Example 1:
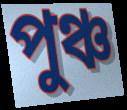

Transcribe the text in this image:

পুঞ্চ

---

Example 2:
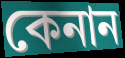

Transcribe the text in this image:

কেনান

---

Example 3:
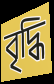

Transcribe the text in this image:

বৃদ্ধি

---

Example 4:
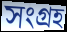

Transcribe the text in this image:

সংগ্রহ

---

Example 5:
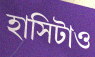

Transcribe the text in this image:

হাসিটাও